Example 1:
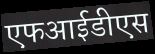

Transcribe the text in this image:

एफआईडीएस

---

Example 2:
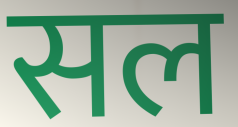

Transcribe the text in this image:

सल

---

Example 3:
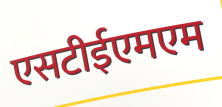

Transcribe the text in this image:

एसटीईएमएम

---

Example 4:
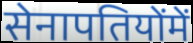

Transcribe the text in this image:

सेनापतियोंमें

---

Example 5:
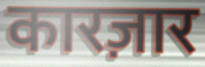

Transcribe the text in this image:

कारज़ार